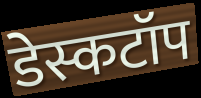
डेस्‍कटॉप